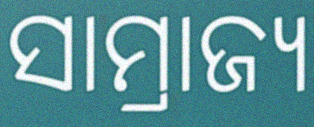
ସାମ୍ରାଜ୍ୟ